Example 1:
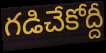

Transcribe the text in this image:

గడిచేకోద్దీ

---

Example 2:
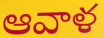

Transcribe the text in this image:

ఆవాళ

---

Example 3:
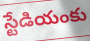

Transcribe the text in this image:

స్టేడియంకు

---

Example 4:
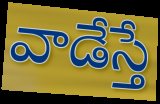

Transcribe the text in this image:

వాడేస్తే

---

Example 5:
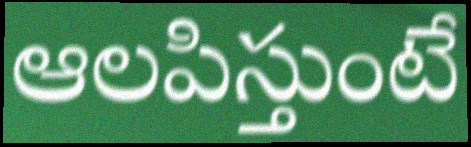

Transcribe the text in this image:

ఆలపిస్తుంటే